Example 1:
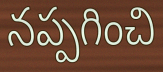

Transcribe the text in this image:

నప్పగించి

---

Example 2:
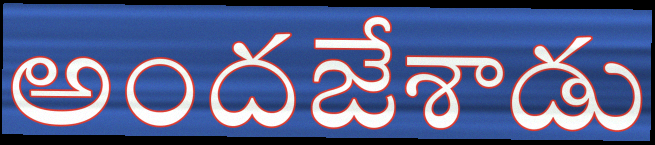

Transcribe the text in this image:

అందజేశాడు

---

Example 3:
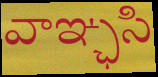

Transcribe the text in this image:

వాఞ్ఛసి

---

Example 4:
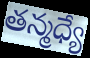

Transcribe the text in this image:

తన్మధ్యే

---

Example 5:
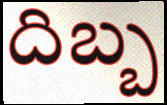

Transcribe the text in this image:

దిబ్బ